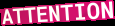
ATTENTION